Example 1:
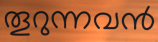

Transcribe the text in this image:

തൂറുന്നവൻ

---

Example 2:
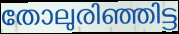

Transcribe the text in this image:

തോലുരിഞ്ഞിട്ട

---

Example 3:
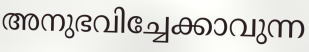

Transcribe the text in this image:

അനുഭവിച്ചേക്കാവുന്ന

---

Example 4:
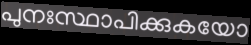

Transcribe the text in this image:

പുനഃസ്ഥാപിക്കുകയോ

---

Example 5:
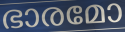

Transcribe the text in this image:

ഭാരമോ